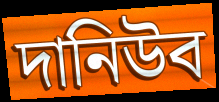
দানিউব